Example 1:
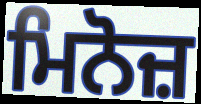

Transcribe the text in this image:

ਮਿਨੋਜ਼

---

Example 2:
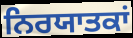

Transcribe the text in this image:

ਨਿਰਯਾਤਕਾਂ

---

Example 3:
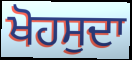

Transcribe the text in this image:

ਖੋਹਸੁਦਾ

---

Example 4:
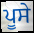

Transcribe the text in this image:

ਪੂਸੇ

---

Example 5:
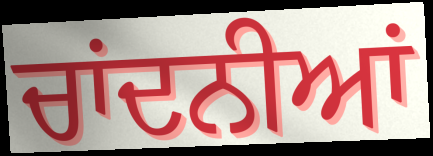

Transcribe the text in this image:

ਚਾਂਦਨੀਆਂ